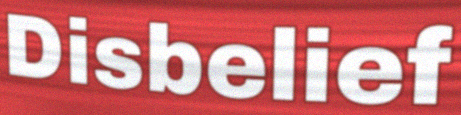
Disbelief